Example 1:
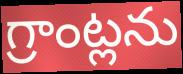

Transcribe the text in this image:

గ్రాంట్లను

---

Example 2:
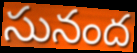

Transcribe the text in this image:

సునంద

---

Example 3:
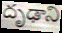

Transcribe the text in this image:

దృఢాని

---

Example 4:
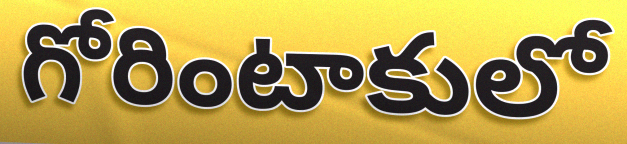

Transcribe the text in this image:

గోరింటాకులో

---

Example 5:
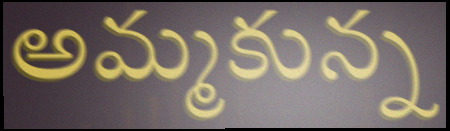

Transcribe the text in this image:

అమ్మకున్న